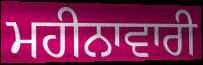
ਮਹੀਨਾਵਾਰੀ